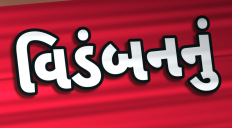
વિડંબનનું